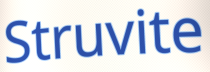
Struvite